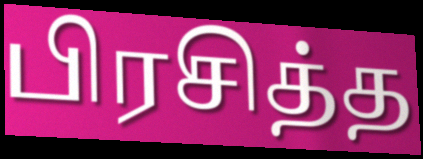
பிரசித்த